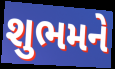
શુભમને